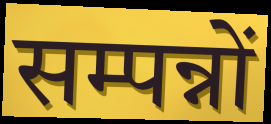
सम्पन्नों